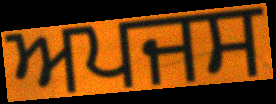
ਅਪਜਸ